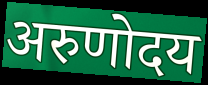
अरुणोदय